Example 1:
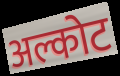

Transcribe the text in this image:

अल्कोट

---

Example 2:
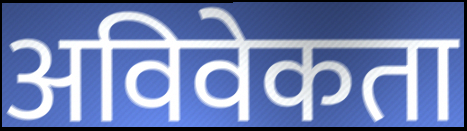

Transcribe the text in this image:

अविवेकता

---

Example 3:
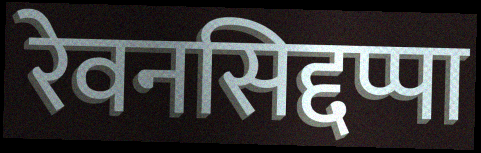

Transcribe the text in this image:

रेवनसिद्दप्पा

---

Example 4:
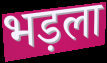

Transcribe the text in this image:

भड़ला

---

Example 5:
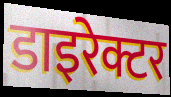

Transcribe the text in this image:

डाइरेक्टर